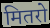
मितरो